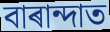
বাৰান্দাত